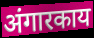
अंगारकाय